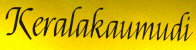
Keralakaumudi